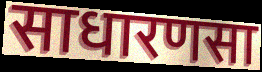
साधारणसा